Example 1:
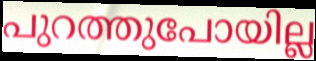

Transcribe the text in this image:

പുറത്തുപോയില്ല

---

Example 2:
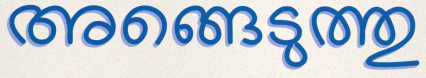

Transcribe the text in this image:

അങ്ങെടുത്തു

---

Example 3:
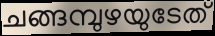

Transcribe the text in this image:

ചങ്ങമ്പുഴയുടേത്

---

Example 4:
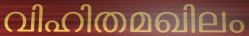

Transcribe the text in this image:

വിഹിതമഖിലം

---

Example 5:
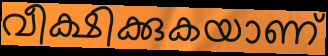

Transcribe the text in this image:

വീക്ഷിക്കുകയാണ്